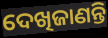
ଦେଖିଜାଣନ୍ତି